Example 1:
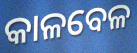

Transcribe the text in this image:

କାଳବେଳ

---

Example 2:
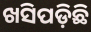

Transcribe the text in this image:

ଖସିପଡ଼ିଛି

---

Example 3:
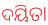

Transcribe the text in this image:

ଦୟିତା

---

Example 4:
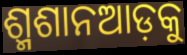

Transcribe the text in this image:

ଶ୍ମଶାନଆଡ଼କୁ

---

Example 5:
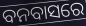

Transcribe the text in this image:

ବନବାସରେ